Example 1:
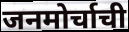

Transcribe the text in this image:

जनमोर्चाची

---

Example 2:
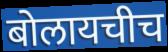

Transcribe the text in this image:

बोलायचीच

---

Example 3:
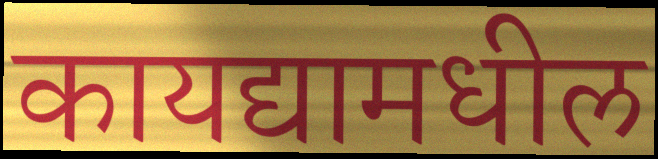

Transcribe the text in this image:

कायद्यामधील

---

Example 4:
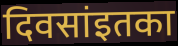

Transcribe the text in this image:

दिवसांइतका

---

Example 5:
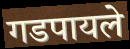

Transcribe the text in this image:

गडपायले